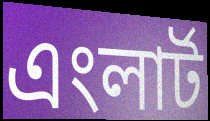
এংলার্ট